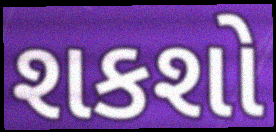
શકશો